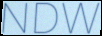
NDW